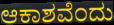
ಆಕಾಶವೆಂದು